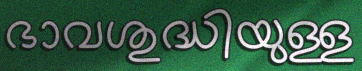
ഭാവശുദ്ധിയുള്ള